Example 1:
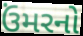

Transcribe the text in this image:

ઉંમરનો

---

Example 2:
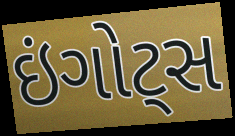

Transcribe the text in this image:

ઇંગોટ્સ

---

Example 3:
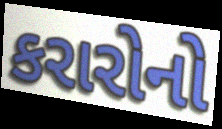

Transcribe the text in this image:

કરારોનો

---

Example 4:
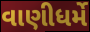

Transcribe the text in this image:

વાણીધર્મે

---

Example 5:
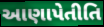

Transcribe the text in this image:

આણાપેતીતિ